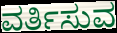
ವರ್ತಿಸುವ